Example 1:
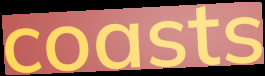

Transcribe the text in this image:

coasts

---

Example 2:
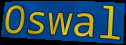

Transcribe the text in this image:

Oswal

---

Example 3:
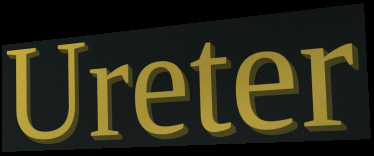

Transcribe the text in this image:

Ureter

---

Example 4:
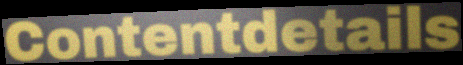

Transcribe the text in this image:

Contentdetails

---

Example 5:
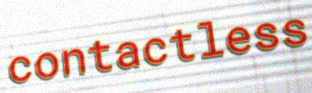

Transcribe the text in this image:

contactless